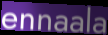
ennaala